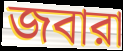
জবারা